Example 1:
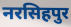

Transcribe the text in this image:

नरसिहपुर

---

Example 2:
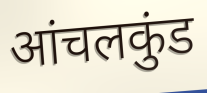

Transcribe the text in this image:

आंचलकुंड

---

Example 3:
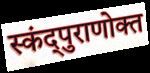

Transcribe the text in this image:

स्कंद्पुराणोक्त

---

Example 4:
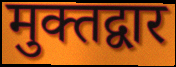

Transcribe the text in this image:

मुक्तद्वार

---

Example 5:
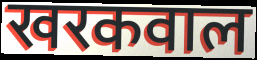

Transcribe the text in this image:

खरकवाल